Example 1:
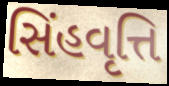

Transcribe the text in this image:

સિંહવૃત્તિ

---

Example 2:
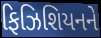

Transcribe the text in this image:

ફિઝિશિયનને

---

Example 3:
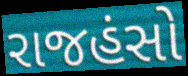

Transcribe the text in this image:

રાજહંસો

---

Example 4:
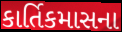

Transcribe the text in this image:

કાર્તિકમાસના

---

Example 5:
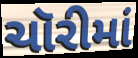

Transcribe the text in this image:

ચૉરીમાં